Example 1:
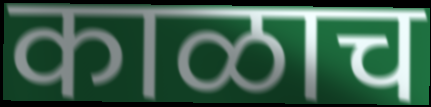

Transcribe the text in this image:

काळाच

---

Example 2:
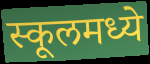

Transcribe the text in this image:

स्कूलमध्ये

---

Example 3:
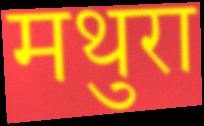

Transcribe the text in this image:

मथुरा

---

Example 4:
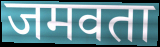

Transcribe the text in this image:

जमवता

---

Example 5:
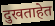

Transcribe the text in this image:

दुखताहेत